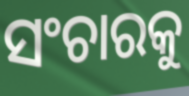
ସଂଚାରକୁ